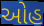
ઓહ